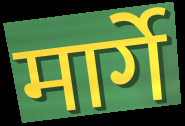
मार्गे